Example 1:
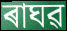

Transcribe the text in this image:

ৰাঘৱ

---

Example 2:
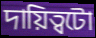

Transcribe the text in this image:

দায়িত্বটো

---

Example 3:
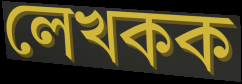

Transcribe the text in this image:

লেখকক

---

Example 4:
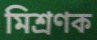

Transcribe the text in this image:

মিশ্ৰণক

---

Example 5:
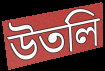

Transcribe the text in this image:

উতলি